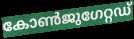
കോൺജുഗേറ്റഡ്